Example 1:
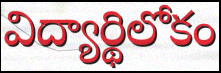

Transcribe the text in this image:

విద్యార్థిలోకం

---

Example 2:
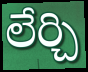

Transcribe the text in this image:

లేర్చి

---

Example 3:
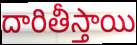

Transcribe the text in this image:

దారితీస్తాయి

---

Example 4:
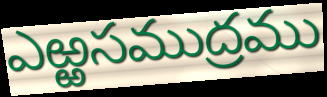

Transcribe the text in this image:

ఎఱ్ఱసముద్రము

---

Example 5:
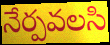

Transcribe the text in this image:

నేర్పవలసి